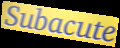
Subacute